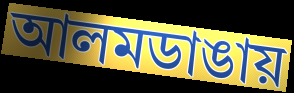
আলমডাঙায়